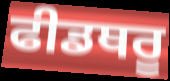
ਫੀਡਥਰੂ